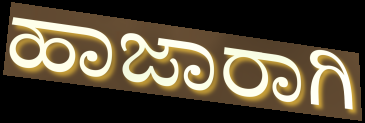
ಹಾಜಾರಾಗಿ